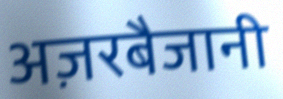
अज़रबैजानी